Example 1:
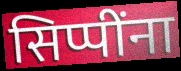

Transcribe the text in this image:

सिप्पींना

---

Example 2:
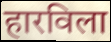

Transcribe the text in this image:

हारविला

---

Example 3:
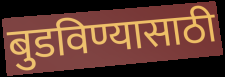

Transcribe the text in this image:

बुडविण्यासाठी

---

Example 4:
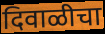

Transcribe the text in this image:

दिवाळीचा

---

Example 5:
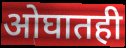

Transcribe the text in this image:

ओघातही